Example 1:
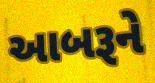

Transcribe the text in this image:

આબરૂને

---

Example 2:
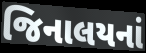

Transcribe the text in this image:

જિનાલયનાં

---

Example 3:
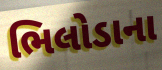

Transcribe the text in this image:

ભિલોડાના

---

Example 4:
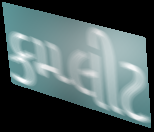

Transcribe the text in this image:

કમ્પ્લીટ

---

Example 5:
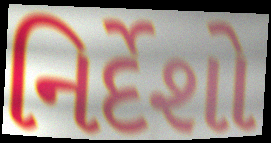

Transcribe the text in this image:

નિર્દેશો